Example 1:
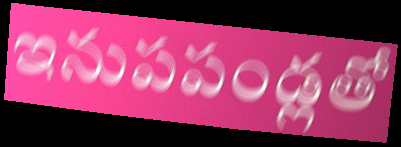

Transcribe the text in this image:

ఇనుపపండ్లతో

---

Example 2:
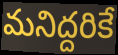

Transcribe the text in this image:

మనిద్దరికే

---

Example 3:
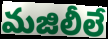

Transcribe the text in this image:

మజిలీలే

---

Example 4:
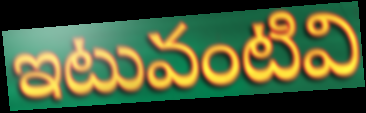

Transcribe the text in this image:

ఇటువంటివి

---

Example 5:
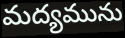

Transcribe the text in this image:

మద్యమును